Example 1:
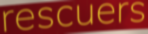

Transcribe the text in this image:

rescuers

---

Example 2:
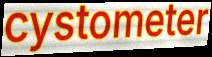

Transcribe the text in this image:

cystometer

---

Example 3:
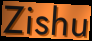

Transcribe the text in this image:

Zishu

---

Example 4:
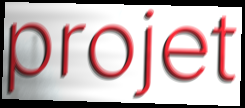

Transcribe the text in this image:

projet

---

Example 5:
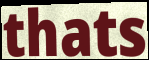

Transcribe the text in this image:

thats